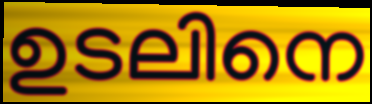
ഉടലിനെ